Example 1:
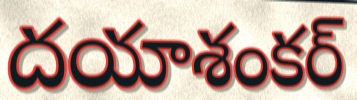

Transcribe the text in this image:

దయాశంకర్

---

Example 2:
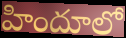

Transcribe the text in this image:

హిందూలో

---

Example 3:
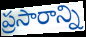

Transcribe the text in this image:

ప్రసారాన్ని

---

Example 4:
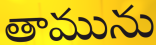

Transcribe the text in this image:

తామును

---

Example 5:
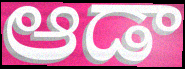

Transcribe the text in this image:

ఆడా